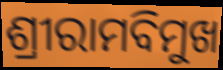
ଶ୍ରୀରାମବିମୁଖ